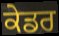
ਕੇਡਰ